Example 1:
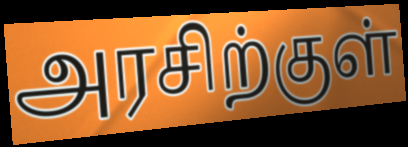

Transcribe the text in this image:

அரசிற்குள்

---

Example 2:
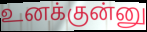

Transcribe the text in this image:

உனக்குன்னு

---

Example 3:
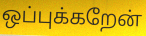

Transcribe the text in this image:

ஒப்புக்கறேன்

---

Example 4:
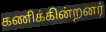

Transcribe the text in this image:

கணிக்கின்றனர்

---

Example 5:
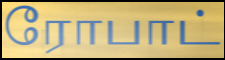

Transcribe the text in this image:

ரோபாட்